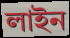
লাইন